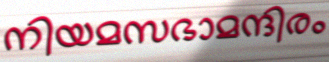
നിയമസഭാമന്ദിരം